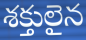
శక్తులైన